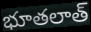
భూతలాత్